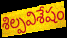
శిల్పవిశేషం